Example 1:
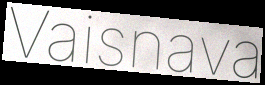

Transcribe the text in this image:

Vaisnava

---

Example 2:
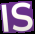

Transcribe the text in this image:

IS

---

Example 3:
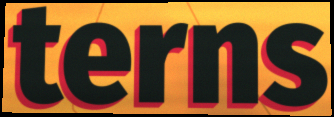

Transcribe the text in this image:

terns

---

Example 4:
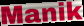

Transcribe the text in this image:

Manik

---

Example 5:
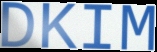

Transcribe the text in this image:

DKIM